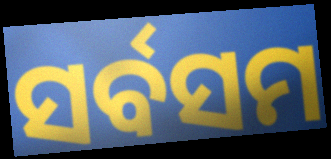
ସର୍ବସମ